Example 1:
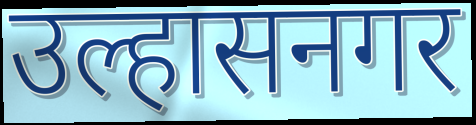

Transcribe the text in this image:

उल्हासनगर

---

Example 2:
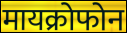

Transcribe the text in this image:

मायक्रोफोन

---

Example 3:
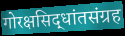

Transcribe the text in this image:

गोरक्षसिद्धांतसंग्रह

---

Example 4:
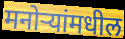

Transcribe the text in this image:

मनोऱ्यांमधील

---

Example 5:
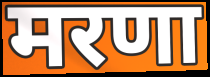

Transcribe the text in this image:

मरणा